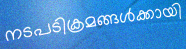
നടപടിക്രമങ്ങൾക്കായി